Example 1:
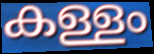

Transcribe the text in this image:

കള്ളം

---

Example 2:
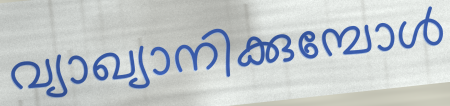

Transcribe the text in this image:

വ്യാഖ്യാനിക്കുമ്പോൾ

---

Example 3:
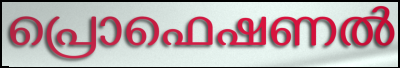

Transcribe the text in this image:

പ്രൊഫെഷണൽ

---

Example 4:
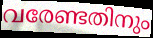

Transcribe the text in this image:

വരേണ്ടതിനും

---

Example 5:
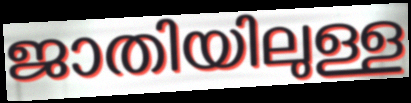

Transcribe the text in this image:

ജാതിയിലുള്ള